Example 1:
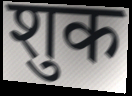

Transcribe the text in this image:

शुक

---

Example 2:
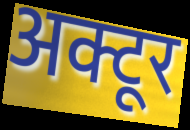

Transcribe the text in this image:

अक्टूर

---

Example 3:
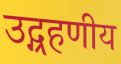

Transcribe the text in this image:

उद्ग्रहणीय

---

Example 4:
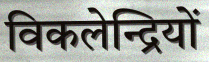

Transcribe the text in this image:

विकलेन्द्रियों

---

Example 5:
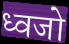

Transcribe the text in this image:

ध्वजो